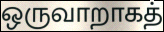
ஒருவாறாகத்